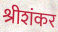
श्रीशंकर